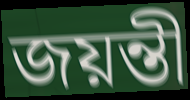
জয়ন্তী